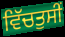
ਵਿੱਚਤੁਸੀਂ